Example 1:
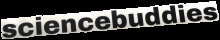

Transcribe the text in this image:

sciencebuddies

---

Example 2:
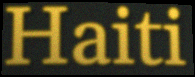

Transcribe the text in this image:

Haiti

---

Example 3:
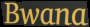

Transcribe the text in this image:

Bwana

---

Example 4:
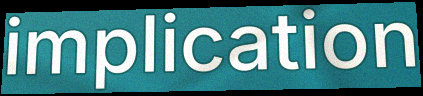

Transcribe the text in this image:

implication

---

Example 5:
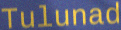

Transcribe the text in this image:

Tulunad